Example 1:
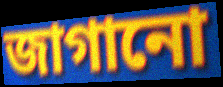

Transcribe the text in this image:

জাগানো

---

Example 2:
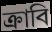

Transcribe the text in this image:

ক্রাবি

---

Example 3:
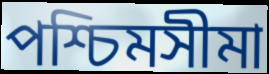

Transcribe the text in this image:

পশ্চিমসীমা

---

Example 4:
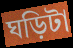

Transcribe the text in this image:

ঘড়িটা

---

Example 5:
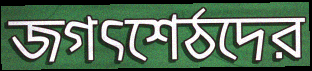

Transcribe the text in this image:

জগৎশেঠদের